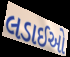
લડાઈઓ